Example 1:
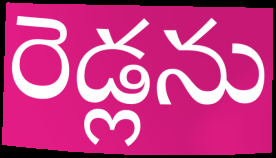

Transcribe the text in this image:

రెడ్లను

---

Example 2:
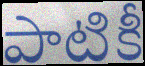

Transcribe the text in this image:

పాటికీ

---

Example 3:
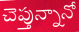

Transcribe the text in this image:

చెప్తున్నానో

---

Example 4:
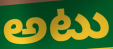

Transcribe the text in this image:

అటు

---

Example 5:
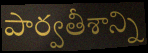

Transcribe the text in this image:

పార్వతీశాన్ని